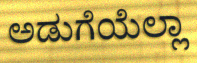
ಅಡುಗೆಯೆಲ್ಲಾ